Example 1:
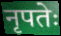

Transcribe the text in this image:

नृपतेः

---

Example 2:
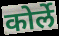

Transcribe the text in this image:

कोर्ले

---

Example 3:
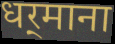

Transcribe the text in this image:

धर्माना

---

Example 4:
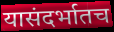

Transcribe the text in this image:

यासंदर्भातच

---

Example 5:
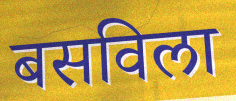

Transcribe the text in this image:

बसविला